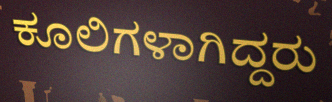
ಕೂಲಿಗಳಾಗಿದ್ದರು